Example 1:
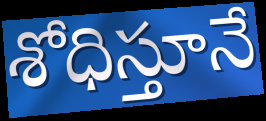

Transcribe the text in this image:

శోధిస్తూనే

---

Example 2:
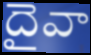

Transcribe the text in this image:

దైవా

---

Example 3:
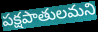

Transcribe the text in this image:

పక్షపాతులమని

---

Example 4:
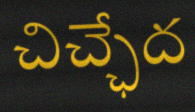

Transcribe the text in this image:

చిచ్ఛేద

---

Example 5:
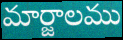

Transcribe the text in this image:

మార్జాలము